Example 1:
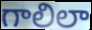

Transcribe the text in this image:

గాలిలా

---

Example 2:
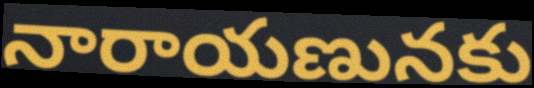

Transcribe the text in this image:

నారాయణునకు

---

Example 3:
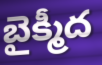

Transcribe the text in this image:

బైక్మీద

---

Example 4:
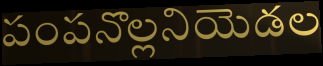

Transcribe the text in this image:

పంపనొల్లనియెడల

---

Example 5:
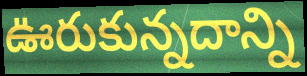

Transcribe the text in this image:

ఊరుకున్నదాన్ని